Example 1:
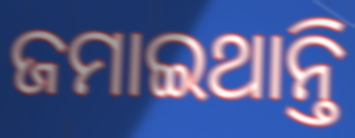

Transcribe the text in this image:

ଜମାଇଥାନ୍ତି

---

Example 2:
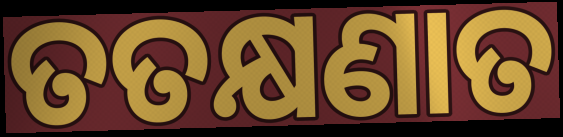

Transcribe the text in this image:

ତତକ୍ଷଣାତ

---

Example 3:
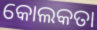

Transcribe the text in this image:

କୋଲକତା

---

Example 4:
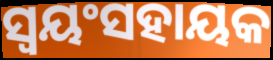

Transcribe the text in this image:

ସ୍ଵୟଂସହାୟକ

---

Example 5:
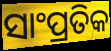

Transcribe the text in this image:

ସାଂପ୍ରତିକ